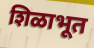
शिळाभूत